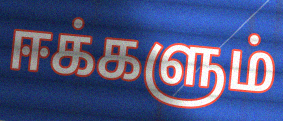
ஈக்களும்